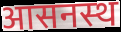
आसनस्थ